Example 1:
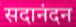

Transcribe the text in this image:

सदानंदन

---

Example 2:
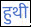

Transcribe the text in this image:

हुथी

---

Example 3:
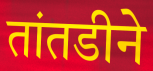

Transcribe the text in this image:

तांतडीने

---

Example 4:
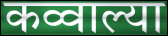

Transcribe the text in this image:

कव्वाल्या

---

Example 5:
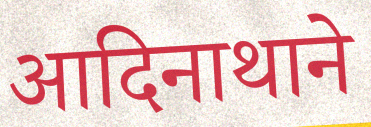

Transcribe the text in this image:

आदिनाथाने